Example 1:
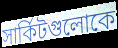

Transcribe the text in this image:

সার্কিটগুলোকে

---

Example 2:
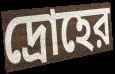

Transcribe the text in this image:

দ্রোহের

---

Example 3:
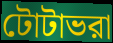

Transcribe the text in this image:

টোটাভরা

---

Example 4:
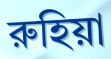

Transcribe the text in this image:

রুহিয়া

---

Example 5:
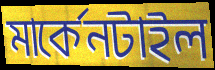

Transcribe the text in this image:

মার্কেনটাইল